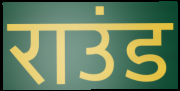
राउंड